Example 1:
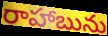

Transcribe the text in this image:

రాహాబును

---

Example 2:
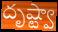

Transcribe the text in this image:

దృష్ట్వా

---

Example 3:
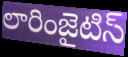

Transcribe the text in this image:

లారింజైటిస్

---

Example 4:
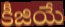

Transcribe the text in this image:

కీజియే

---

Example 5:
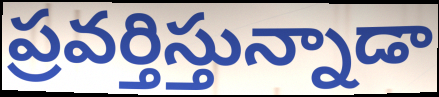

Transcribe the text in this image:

ప్రవర్తిస్తున్నాడా